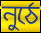
নুঠে